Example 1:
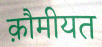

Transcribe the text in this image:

क़ौमीयत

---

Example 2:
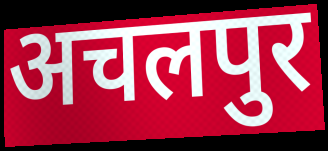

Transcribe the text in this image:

अचलपुर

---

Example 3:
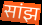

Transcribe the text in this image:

सांझ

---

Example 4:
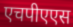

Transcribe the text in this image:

एचपीएएस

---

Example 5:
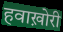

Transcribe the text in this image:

हवाख़ोरी